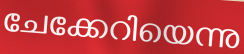
ചേക്കേറിയെന്നു